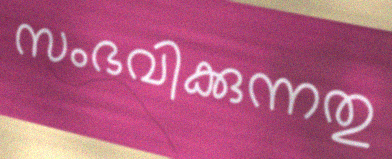
സംഭവിക്കുന്നതു